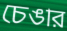
চেঙার